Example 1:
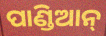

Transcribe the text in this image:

ପାଣ୍ଡିଆନ୍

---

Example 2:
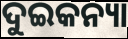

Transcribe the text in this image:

ଦୁଇକନ୍ୟା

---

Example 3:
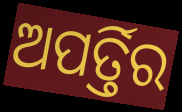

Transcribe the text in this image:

ଅପର୍ତ୍ତିର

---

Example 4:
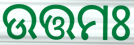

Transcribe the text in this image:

ଉତ୍ତମଃ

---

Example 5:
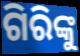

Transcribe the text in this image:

ଗିରିଙ୍କୁ